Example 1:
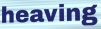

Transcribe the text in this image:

heaving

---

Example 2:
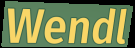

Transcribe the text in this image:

Wendl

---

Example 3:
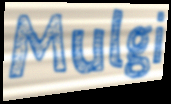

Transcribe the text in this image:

Mulgi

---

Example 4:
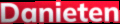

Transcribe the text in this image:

Danieten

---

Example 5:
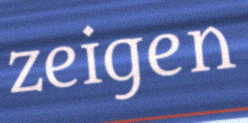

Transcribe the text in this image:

zeigen